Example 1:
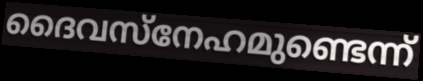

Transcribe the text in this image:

ദൈവസ്നേഹമുണ്ടെന്ന്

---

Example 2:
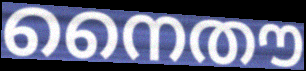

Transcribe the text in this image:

നൈതൗ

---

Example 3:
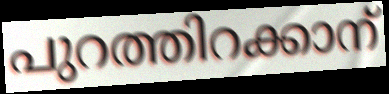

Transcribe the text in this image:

പുറത്തിറക്കാന്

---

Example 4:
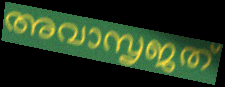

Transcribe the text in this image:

അവാസൃജത്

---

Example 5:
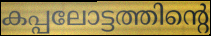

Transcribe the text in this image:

കപ്പലോട്ടത്തിന്റെ